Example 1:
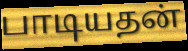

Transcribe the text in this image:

பாடியதன்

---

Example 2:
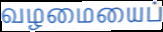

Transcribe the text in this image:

வழமையைப்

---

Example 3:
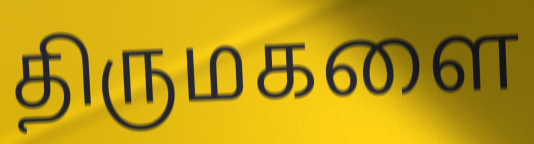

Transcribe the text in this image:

திருமகளை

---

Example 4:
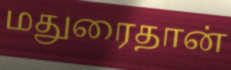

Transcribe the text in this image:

மதுரைதான்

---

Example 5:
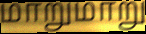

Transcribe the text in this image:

மாறுமாறு